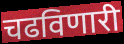
चढविणारी